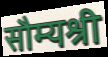
सौम्यश्री